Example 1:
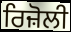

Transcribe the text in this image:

ਰਿਜ਼ੋਲੀ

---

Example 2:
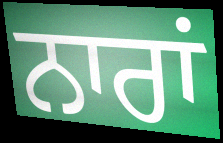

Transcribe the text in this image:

ਨਾਰਾਂ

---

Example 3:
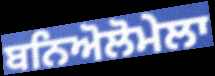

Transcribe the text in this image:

ਬਨਿਅੋਲੋਮੇਲਾ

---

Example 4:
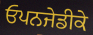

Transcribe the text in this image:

ਓਪਨਜੇਡੀਕੇ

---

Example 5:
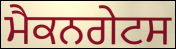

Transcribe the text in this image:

ਮੈਕਨਗੇਟਸ